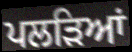
ਪਲੜਿਆਂ